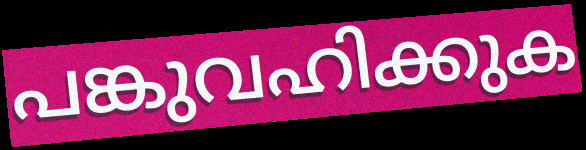
പങ്കുവഹിക്കുക